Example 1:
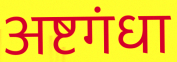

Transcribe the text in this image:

अष्टगंधा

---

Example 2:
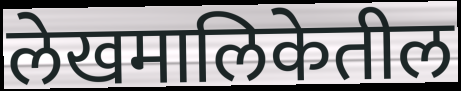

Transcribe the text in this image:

लेखमालिकेतील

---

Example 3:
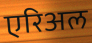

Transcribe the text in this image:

एरिअल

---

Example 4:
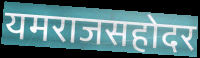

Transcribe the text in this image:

यमराजसहोदर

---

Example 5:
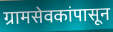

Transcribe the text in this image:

ग्रामसेवकांपासून